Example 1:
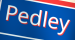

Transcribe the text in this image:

Pedley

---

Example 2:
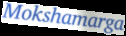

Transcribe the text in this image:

Mokshamarga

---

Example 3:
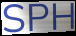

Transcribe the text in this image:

SPH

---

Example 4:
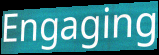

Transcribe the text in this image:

Engaging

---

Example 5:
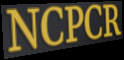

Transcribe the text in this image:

NCPCR